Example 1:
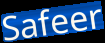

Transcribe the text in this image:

Safeer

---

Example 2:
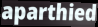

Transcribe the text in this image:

aparthied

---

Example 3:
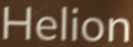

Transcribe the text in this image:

Helion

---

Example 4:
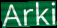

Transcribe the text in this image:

Arki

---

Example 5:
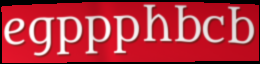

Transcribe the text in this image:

egppphbcb